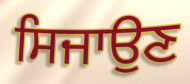
ਸਿਜਾਉਣ